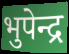
भुपेन्द्र